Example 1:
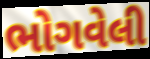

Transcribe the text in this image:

ભોગવેલી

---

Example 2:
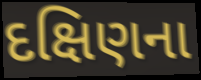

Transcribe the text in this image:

દક્ષિણના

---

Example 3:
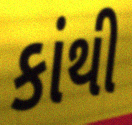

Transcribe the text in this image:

કાંથી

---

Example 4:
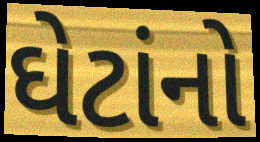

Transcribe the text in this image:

ઘેટાંનો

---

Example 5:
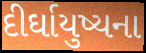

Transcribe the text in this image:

દીર્ઘાયુષ્યના